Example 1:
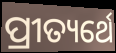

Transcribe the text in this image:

ପ୍ରୀତ୍ୟର୍ଥେ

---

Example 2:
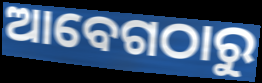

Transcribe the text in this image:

ଆବେଗଠାରୁ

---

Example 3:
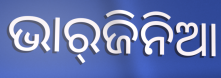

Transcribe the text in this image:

ଭାର୍‌ଜିନିଆ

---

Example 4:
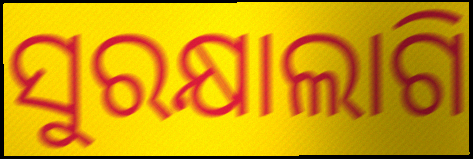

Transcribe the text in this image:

ସୁରକ୍ଷାଲାଗି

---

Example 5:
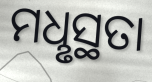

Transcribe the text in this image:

ମଧୢସ୍ଥତା